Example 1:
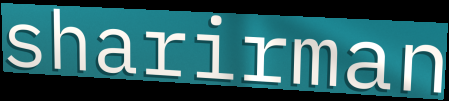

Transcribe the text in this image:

sharirman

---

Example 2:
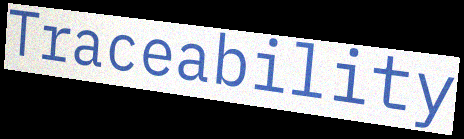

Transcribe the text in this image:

Traceability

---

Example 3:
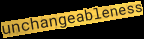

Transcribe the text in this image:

unchangeableness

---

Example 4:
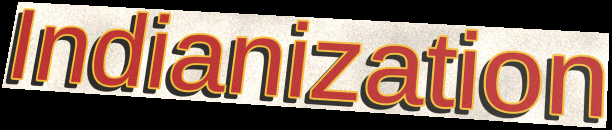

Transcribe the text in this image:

Indianization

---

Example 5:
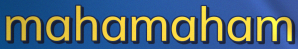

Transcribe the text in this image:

mahamaham